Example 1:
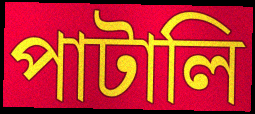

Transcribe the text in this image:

পাটালি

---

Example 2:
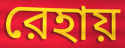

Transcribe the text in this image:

রেহায়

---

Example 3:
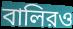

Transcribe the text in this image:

বালিরও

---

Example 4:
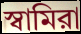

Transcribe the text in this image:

স্বামিরা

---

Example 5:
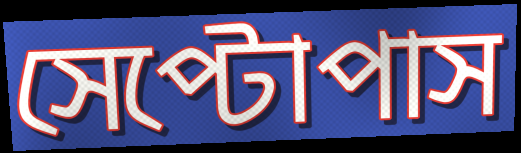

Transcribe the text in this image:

সেপ্টোপাস